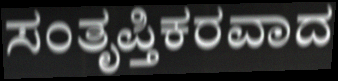
ಸಂತೃಪ್ತಿಕರವಾದ